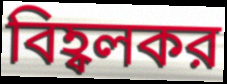
বিহ্বলকর